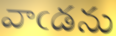
వాఁడను